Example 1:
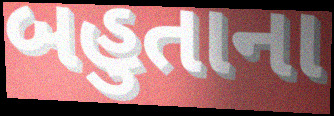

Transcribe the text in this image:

બહુતાના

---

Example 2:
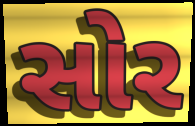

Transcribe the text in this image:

સોર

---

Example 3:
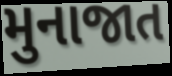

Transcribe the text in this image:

મુનાજાત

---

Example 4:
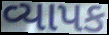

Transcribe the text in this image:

વ્યાપક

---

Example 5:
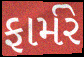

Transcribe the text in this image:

ફાર્મરે